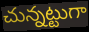
చున్నట్టుగా